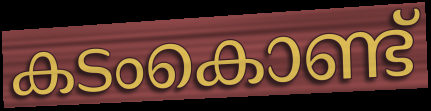
കടംകൊണ്ട്